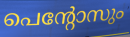
പെന്റോസും